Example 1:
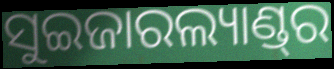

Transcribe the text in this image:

ସୁଇଜାରଲ୍ୟାଣ୍ଡ୍‌ର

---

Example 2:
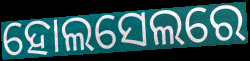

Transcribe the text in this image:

ହୋଲସେଲରେ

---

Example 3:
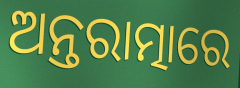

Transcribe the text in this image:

ଅନ୍ତରାତ୍ମାରେ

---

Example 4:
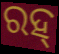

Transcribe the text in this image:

ରହ୍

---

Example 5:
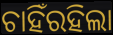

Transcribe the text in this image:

ଚାହିଁରହିଲା